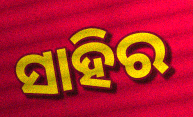
ସାହିର